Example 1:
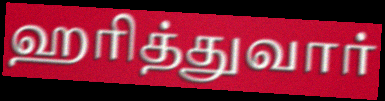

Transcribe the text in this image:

ஹரித்துவார்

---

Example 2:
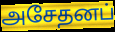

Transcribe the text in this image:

அசேதனப்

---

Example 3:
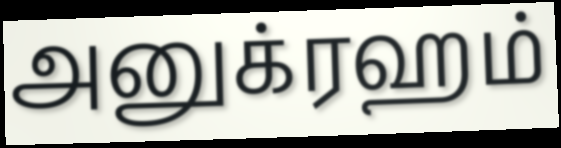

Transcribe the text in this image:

அனுக்ரஹம்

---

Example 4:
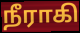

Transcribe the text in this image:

நீராகி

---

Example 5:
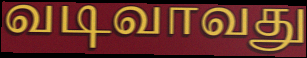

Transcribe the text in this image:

வடிவாவது